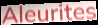
Aleurites